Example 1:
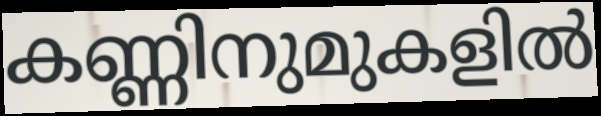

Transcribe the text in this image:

കണ്ണിനുമുകളിൽ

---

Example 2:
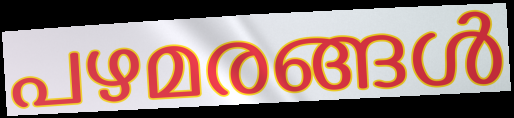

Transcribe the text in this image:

പഴമരങ്ങൾ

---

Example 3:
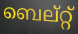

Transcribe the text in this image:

ബെല്റ്റ്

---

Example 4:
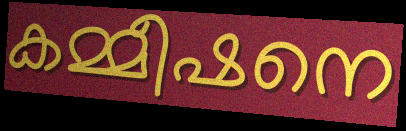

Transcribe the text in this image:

കമ്മീഷനെ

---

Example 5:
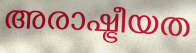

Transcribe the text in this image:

അരാഷ്ട്രീയത